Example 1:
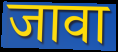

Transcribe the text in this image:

जावा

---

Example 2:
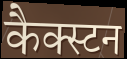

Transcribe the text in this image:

कैक्स्टन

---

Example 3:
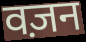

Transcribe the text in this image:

वज़न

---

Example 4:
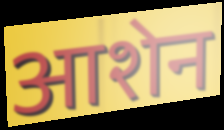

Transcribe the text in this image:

आशेन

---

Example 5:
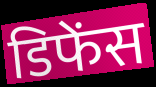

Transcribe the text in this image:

डिफेंस